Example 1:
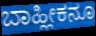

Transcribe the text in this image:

ಬಾಹ್ಲೀಕನೂ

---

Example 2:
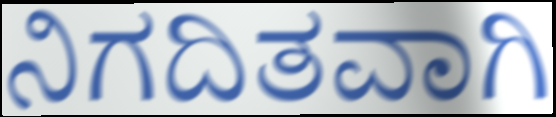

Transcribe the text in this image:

ನಿಗದಿತವಾಗಿ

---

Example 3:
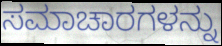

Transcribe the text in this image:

ಸಮಾಚಾರಗಳನ್ನು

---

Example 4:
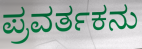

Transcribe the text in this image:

ಪ್ರವರ್ತಕನು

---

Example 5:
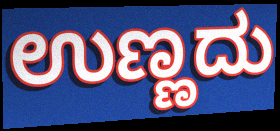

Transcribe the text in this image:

ಉಣ್ಣದು